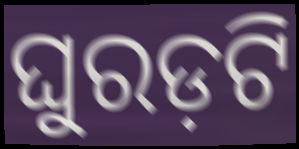
ଘୁରଡ଼ଟି